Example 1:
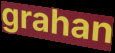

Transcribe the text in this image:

grahan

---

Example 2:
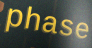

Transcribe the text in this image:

phase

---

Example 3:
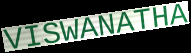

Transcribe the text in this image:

VISWANATHA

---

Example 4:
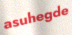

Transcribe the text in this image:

asuhegde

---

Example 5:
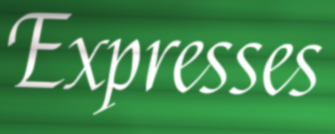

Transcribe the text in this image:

Expresses